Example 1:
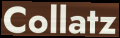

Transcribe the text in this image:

Collatz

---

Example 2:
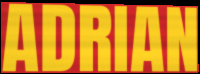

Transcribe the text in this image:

ADRIAN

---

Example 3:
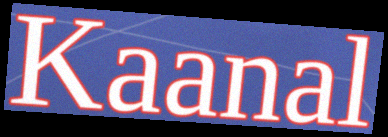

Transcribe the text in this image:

Kaanal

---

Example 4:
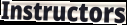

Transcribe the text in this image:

Instructors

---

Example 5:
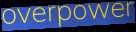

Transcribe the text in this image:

overpower